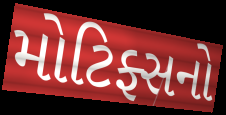
મોટિફ્સનો